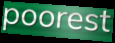
poorest